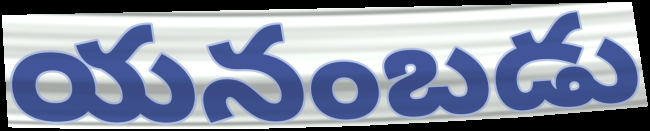
యనంబడు